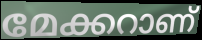
മേക്കറാണ്